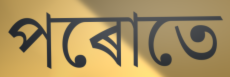
পৰোতে